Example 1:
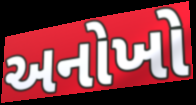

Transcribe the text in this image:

અનોખો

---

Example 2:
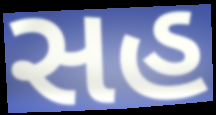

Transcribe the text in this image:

સહ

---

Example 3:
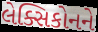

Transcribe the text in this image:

લેક્સિકોનને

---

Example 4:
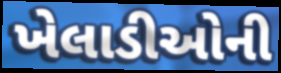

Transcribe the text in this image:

ખેલાડીઓની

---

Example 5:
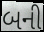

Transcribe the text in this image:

બની